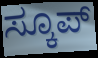
ಸ್ಕೂಪ್